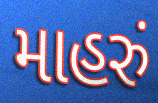
માહરું